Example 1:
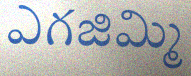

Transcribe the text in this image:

ఎగజిమ్మి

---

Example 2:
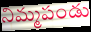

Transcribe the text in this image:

నిమ్మపండు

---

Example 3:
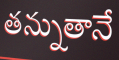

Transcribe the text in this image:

తన్నుతానే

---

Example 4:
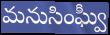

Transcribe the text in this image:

మనుసింఘ్వీ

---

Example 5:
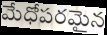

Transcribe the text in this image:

మేధోపరమైన